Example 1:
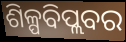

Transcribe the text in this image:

ଶିଳ୍ପବିପ୍ଲବର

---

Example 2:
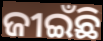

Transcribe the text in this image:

ଜୀଇଁଛି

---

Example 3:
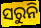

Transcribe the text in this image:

ସରୁନି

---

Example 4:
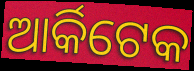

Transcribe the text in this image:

ଆର୍କିଟେକ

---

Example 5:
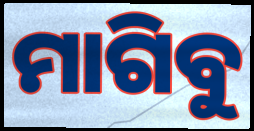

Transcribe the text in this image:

ମାଗିବୁ